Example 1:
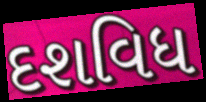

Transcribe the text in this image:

દશવિધ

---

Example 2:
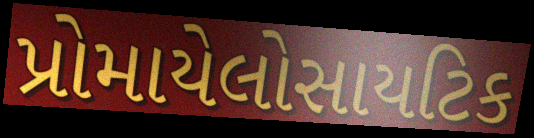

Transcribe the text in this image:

પ્રોમાયેલોસાયટિક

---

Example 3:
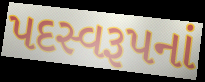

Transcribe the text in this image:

પદસ્વરૂપનાં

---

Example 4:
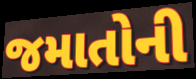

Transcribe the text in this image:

જમાતોની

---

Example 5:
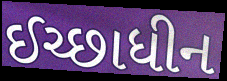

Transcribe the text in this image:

ઈચ્છાધીન